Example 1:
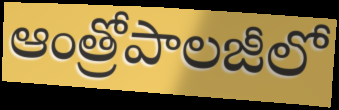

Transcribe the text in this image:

ఆంత్రోపాలజీలో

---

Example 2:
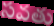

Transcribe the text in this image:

సవతు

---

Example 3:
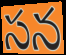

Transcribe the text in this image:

సన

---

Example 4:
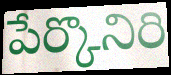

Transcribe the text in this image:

పేర్కొనిరి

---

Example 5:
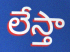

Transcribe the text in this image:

లేస్తా